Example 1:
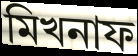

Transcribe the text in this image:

মিখনাফ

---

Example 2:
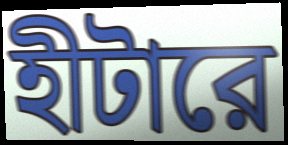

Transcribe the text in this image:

হীটারে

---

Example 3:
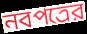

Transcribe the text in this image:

নবপত্রের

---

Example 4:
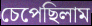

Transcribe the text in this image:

চেপেছিলাম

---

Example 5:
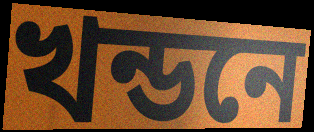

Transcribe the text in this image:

খন্ডনে